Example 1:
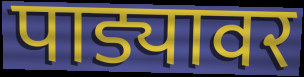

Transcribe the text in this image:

पाड्यावर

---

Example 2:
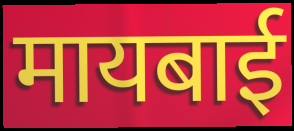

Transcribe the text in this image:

मायबाई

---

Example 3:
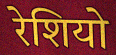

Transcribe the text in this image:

रेशियो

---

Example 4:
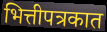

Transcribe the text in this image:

भित्तीपत्रकात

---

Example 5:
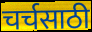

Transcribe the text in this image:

चर्चसाठी